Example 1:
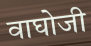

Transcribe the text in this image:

वाघोजी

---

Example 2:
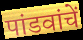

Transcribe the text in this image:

पांडवांचें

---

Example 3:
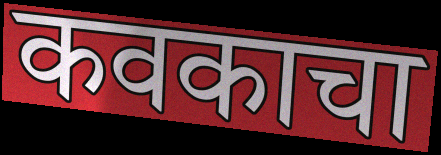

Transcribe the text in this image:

कवकाचा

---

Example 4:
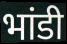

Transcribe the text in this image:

भांडी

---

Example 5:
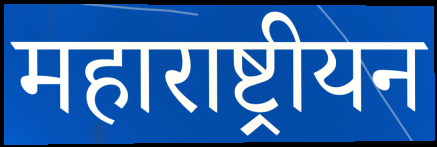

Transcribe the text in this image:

महाराष्ट्रीयन